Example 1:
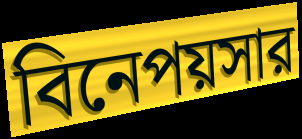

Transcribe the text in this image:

বিনেপয়সার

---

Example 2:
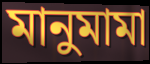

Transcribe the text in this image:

মানুমামা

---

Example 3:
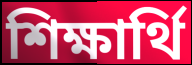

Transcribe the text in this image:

শিক্ষার্থি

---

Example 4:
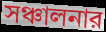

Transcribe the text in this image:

সঞ্চালনার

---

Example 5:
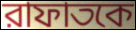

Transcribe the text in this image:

রাফাতকে